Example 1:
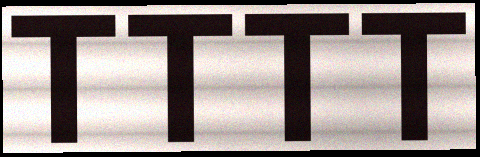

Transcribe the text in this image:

TTTT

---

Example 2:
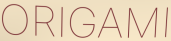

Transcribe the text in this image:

ORIGAMI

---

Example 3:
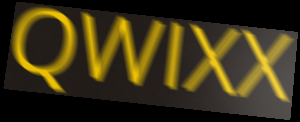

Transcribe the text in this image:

QWIXX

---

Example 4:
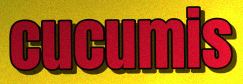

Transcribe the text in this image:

cucumis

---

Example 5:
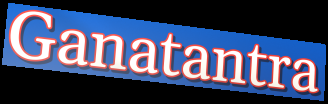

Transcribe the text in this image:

Ganatantra